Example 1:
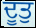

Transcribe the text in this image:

ਦੂਤੁ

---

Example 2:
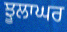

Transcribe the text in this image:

ਝੂਲਾਘਰ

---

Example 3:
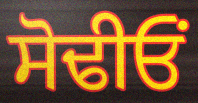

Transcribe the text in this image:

ਸੋਢੀਓਂ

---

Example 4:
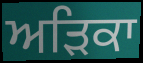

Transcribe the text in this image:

ਅੜਿਕਾ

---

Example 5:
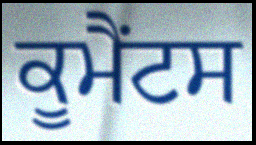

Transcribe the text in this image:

ਕੂਮੈਂਟਸ